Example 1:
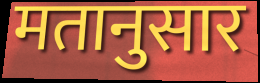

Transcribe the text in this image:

मतानुसार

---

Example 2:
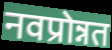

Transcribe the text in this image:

नवप्रोन्नत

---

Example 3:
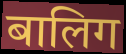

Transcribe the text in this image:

बालिग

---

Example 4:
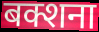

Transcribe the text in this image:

बक्शना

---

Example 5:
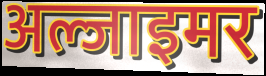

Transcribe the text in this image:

अल्जाइमर